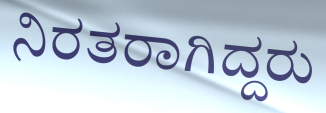
ನಿರತರಾಗಿದ್ದರು